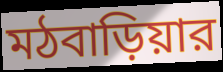
মঠবাড়িয়ার